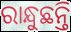
ରାନ୍ଧୁଛନ୍ତି